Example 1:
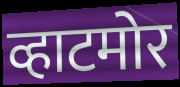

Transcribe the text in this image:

व्हाटमोर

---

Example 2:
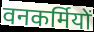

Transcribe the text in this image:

वनकर्मियों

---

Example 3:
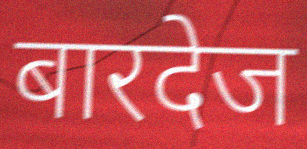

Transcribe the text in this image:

बारदेज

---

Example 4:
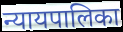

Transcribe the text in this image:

न्यायपालिका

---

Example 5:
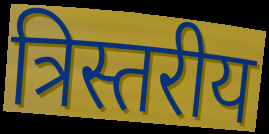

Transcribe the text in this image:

त्रिस्तरीय